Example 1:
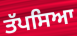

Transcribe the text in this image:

ਤੱਪਸਿਆ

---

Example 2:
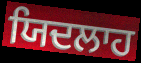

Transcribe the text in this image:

ਯਿਦਲਾਹ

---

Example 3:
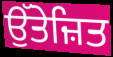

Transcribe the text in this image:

ਉੱਤੇਜ਼ਿਤ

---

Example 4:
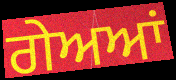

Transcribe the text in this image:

ਗੇਅਆਂ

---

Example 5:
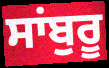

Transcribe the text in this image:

ਸਾਂਬੁਰੂ